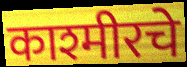
काश्मीरचे